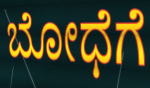
ಬೋಧೆಗೆ